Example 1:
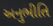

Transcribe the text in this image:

અનુભીતિ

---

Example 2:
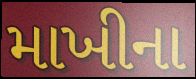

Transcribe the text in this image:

માખીના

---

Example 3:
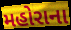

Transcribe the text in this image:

મહોરાના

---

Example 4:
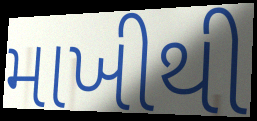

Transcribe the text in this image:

માખીથી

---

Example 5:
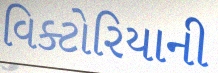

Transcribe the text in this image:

વિક્ટોરિયાની